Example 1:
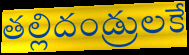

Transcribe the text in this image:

తల్లిదండ్రులకే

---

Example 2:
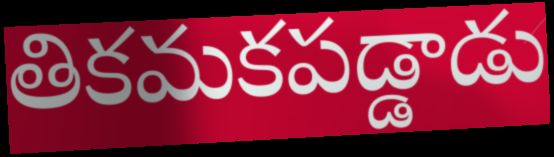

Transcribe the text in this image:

తికమకపడ్డాడు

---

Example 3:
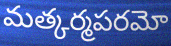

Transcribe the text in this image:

మత్కర్మపరమో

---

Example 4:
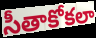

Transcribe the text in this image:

సీతాకోకలా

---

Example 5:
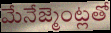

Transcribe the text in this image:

మేనేజ్మెంట్లతో